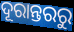
ଦୂରାନ୍ତରରୁ